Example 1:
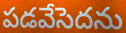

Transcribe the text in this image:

పడవేసెదను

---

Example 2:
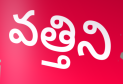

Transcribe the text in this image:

వత్తిని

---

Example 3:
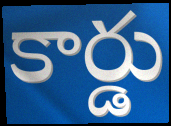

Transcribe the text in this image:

కార్డు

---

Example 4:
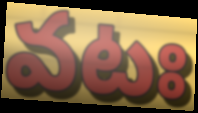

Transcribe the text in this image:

వటః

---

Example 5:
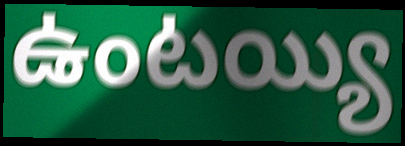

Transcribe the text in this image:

ఉంటయ్యి